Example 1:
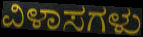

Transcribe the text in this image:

ವಿಳಾಸಗಳು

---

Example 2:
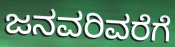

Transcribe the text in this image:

ಜನವರಿವರೆಗೆ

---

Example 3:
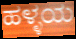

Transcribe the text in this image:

ಹಳ್ಳಯ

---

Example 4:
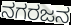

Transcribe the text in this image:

ನಗರಜನ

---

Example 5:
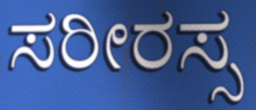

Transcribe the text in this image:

ಸರೀರಸ್ಸ